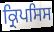
ਕ੍ਰਿਪਸਿਸ